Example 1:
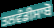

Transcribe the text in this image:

ਤਲਵੰਡੀਸਾਬੋ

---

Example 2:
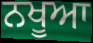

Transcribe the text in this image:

ਨਖੂਆ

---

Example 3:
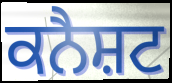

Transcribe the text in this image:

ਕਨੈਸ਼ਟ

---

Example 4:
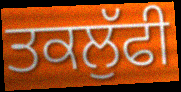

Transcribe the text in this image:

ਤਕਲੁੱਫੀ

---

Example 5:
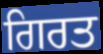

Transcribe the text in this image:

ਗਿਰਤ